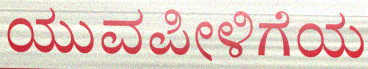
ಯುವಪೀಳಿಗೆಯ